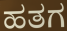
ಹತಗ